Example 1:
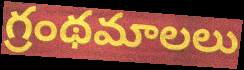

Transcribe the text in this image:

గ్రంథమాలలు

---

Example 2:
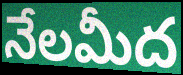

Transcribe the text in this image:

నేలమీద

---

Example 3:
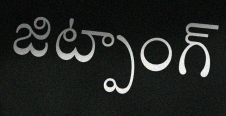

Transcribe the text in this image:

జిట్పాంగ్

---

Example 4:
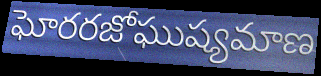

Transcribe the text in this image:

ఘోరరజోఘుష్యమాణ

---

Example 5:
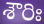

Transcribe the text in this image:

శౌరిః